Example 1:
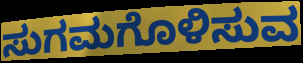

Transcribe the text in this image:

ಸುಗಮಗೊಳಿಸುವ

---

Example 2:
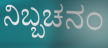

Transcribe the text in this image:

ನಿಬ್ಬಚನಂ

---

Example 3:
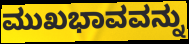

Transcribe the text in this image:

ಮುಖಭಾವವನ್ನು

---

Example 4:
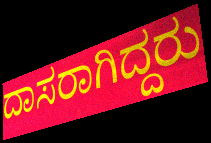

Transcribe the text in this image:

ದಾಸರಾಗಿದ್ದರು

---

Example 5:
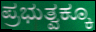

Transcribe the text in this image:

ಪ್ರಭುತ್ವಕ್ಕೂ